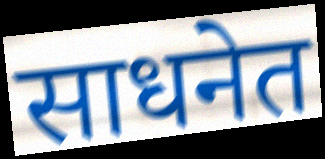
साधनेत